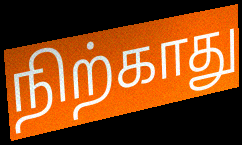
நிற்காது